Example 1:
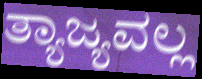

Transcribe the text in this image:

ತ್ಯಾಜ್ಯವಲ್ಲ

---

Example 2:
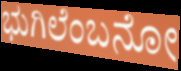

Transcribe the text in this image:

ಭುಗಿಲೆಂಬನೋ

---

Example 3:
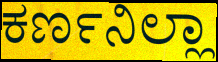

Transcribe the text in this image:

ಕರ್ಣನಿಲ್ಲಾ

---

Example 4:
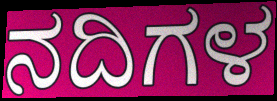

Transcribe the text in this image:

ನದಿಗಳ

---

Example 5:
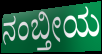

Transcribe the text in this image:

ನಂಬ್ತೀಯ